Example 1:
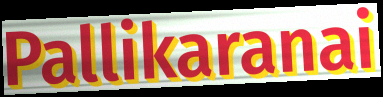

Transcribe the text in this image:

Pallikaranai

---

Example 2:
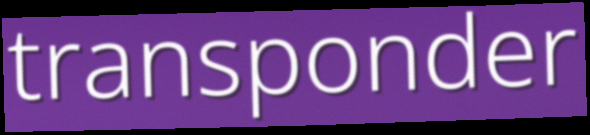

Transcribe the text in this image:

transponder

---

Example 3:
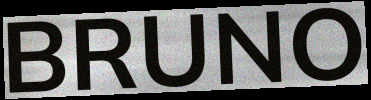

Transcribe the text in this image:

BRUNO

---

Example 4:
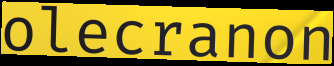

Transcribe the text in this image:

olecranon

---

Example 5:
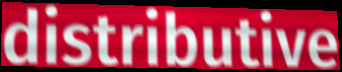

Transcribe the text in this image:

distributive